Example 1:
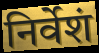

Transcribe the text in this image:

निर्वेशं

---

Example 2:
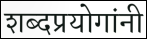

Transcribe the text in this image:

शब्दप्रयोगांनी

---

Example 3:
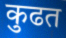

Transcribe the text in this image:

कुढत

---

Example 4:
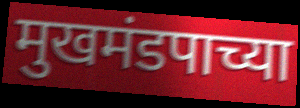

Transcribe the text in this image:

मुखमंडपाच्या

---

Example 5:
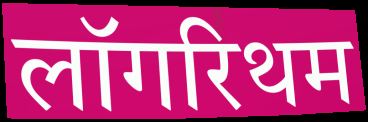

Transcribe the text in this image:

लॉगरिथम